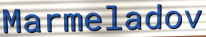
Marmeladov